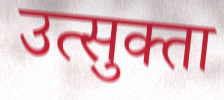
उत्सुक्ता